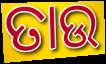
ତାଉ